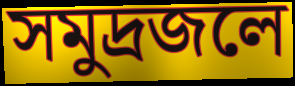
সমুদ্রজলে